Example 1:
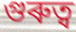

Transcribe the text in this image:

গুৰুত্ব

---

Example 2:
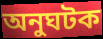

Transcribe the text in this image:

অনুঘটক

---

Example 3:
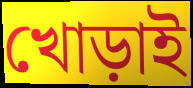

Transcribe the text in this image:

খোড়াই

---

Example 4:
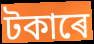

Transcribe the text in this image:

টকাৰে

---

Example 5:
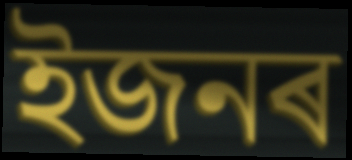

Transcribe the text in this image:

ইজনৰ